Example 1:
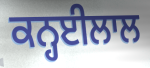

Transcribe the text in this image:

ਕਨ੍ਹਈਲਾਲ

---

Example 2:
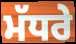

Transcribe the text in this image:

ਮੱਧਰੇ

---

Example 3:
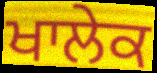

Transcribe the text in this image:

ਖਾਲੇਕ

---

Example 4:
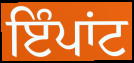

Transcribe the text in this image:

ਇੰਪਾਂਟ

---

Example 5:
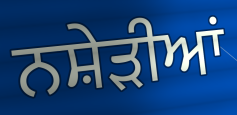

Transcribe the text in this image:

ਨਸ਼ੇੜੀਆਂ